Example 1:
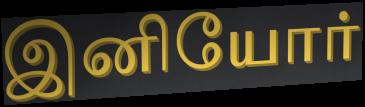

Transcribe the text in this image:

இனியோர்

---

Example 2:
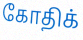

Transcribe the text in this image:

கோதிக்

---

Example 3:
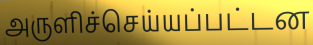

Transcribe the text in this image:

அருளிச்செய்யப்பட்டன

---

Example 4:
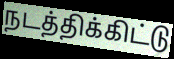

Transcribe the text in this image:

நடத்திக்கிட்டு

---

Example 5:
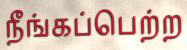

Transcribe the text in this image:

நீங்கப்பெற்ற